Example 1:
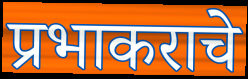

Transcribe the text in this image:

प्रभाकराचे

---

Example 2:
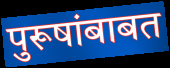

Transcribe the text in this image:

पुरूषांबाबत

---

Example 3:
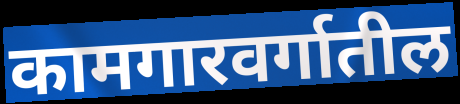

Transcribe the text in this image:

कामगारवर्गातील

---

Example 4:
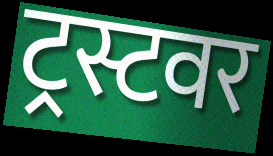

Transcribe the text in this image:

ट्रस्टवर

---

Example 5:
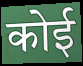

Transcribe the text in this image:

कोई